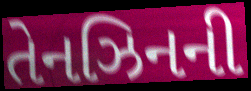
તેનઝિનની